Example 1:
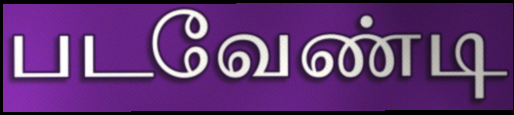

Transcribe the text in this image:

படவேண்டி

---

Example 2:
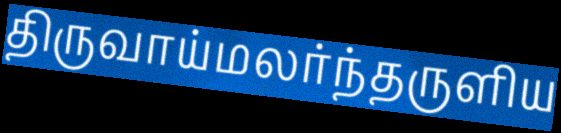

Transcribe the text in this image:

திருவாய்மலர்ந்தருளிய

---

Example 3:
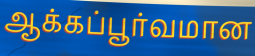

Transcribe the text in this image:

ஆக்கப்பூர்வமான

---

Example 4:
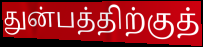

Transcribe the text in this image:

துன்பத்திற்குத்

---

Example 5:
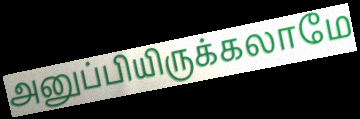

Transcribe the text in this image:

அனுப்பியிருக்கலாமே